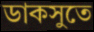
ডাকসুতে